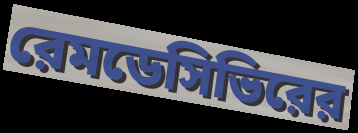
রেমডেসিভিরের